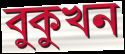
বুকুখন